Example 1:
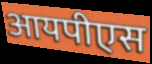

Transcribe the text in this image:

आयपीएस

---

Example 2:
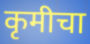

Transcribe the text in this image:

कृमीचा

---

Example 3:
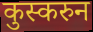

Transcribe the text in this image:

कुस्करुन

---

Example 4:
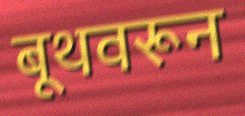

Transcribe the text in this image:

बूथवरून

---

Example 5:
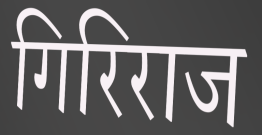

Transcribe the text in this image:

गिरिराज